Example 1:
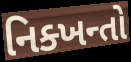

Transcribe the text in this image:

નિક્ખન્તો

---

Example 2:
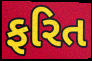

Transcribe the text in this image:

ફરિત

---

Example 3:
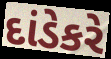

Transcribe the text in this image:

દાંડેકરે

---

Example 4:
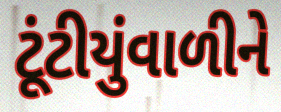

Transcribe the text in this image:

ટૂંટીયુંવાળીને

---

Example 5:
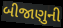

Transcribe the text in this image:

બીજાણુની